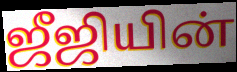
ஜீஜியின்